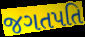
જગતપતિ